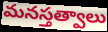
మనస్తత్వాలు